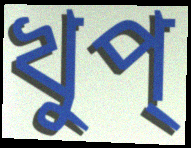
খুপ্